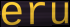
eru